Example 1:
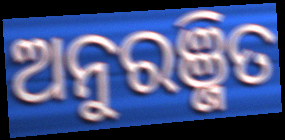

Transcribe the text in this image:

ଅନୁରଞ୍ଜିତ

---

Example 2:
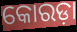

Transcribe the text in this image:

କୋରଡ଼ା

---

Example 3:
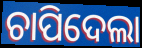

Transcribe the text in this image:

ଚାପିଦେଲା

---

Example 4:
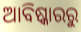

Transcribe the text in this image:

ଆବିଷ୍କାରରୁ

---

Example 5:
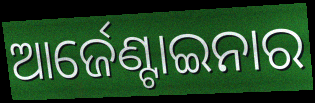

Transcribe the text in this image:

ଆର୍ଜେଣ୍ଟାଇନାର